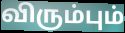
விரும்பும்